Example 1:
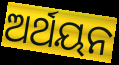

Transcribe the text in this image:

ଅର୍ଥୟନ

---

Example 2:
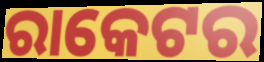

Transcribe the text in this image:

ରାକେଟର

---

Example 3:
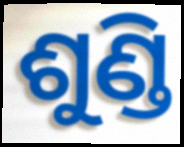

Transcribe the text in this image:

ଶୁଣ୍ଡି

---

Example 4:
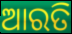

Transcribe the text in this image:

ଆରତି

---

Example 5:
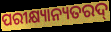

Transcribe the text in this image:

ପରୀକ୍ଷ୍ୟାନ୍ୟତରଦ୍